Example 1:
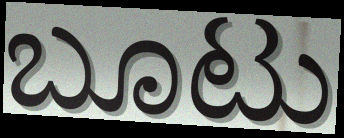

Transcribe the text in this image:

ಬೂಟು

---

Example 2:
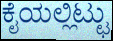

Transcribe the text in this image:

ಕೈಯಲ್ಲಿಟ್ಟು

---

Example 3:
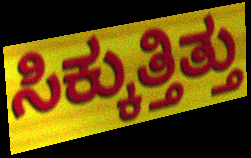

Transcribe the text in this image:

ಸಿಕ್ಕುತ್ತಿತ್ತು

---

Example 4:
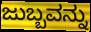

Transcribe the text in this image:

ಜುಬ್ಬವನ್ನು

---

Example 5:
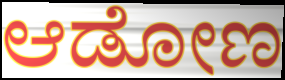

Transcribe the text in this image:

ಆಡೋಣ